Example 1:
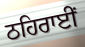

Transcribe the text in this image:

ਠਹਿਰਾਈਂ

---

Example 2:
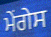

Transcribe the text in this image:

ਮੇਂਗੇਸ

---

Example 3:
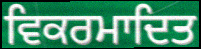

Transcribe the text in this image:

ਵਿਕਰਮਾਦਿਤ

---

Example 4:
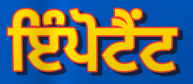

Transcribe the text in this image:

ਇੰਪੋਟੈਂਟ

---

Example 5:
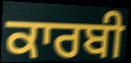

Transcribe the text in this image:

ਕਾਰਬੀ